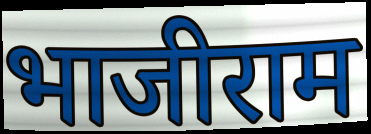
भाजीराम